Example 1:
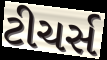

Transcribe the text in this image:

ટીચર્સ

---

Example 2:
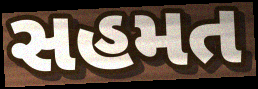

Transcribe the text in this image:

સહમત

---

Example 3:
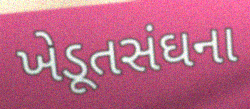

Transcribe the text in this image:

ખેડૂતસંઘના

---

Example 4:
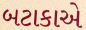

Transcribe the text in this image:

બટાકાએ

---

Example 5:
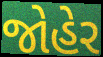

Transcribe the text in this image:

જોહેર